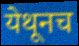
येथूनच